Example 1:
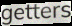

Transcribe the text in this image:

getters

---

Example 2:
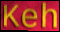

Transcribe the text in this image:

Keh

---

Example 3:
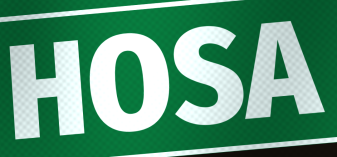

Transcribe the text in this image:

HOSA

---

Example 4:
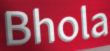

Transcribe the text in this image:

Bhola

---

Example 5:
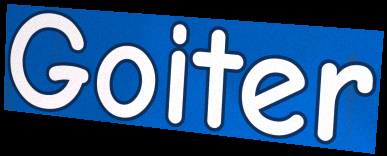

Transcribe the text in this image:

Goiter